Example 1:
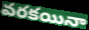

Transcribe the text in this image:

వరకయినా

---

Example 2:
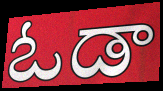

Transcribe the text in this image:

ఓడా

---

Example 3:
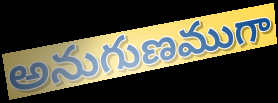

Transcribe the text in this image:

అనుగుణముగా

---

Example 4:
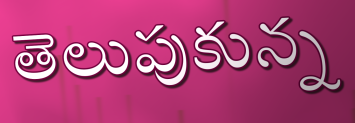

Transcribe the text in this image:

తెలుపుకున్న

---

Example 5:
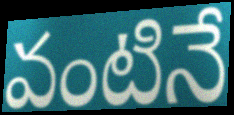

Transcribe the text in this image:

వంటినే